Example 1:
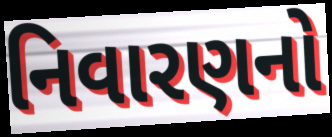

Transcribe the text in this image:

નિવારણનો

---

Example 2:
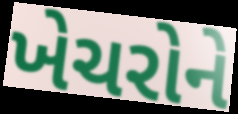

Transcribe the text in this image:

ખેચરોને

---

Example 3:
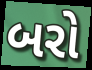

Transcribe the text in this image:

બરો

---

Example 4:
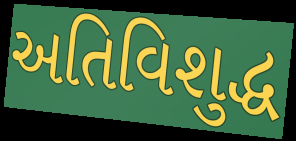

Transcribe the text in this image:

અતિવિશુદ્ધ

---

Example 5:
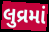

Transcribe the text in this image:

લુવ્રમાં